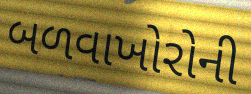
બળવાખોરોની